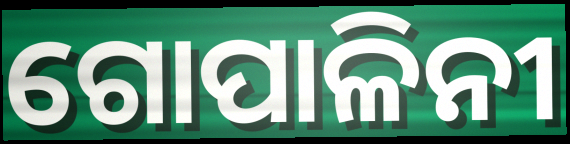
ଗୋପାଳିନୀ